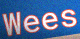
Wees